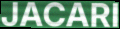
JACARI